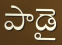
పాడై